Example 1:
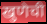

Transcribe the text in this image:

खुणेची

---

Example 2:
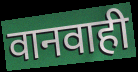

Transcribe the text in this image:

वानवाही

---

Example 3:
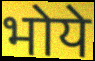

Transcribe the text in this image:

भोये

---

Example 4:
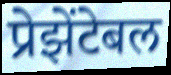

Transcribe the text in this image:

प्रेझेंटेबल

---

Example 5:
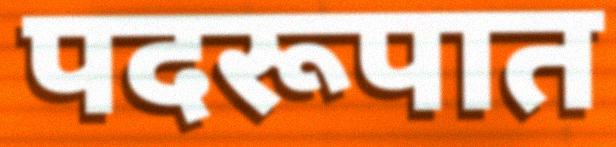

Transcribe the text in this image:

पदरूपात